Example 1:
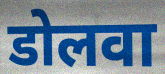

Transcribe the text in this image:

डोलवा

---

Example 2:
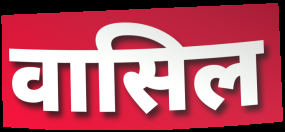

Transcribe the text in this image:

वासिल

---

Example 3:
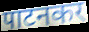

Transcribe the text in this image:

पाटनकर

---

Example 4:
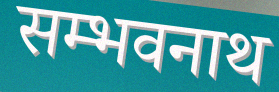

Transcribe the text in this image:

सम्भवनाथ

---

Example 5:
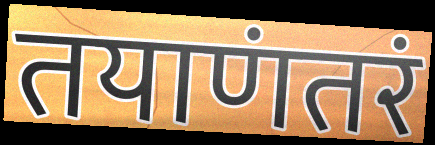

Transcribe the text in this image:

तयाणंतरं